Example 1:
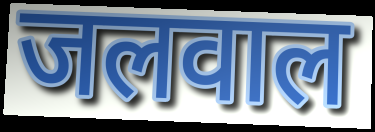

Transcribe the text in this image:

जलवाल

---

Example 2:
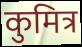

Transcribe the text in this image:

कुमित्र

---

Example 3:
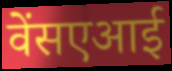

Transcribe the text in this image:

वेंसएआई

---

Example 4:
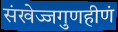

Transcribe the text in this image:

संखेज्जगुणहीणं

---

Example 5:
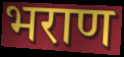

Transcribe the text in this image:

भराण